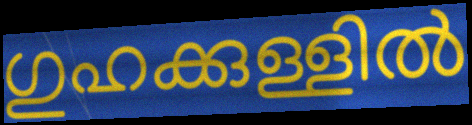
ഗുഹക്കുള്ളിൽ